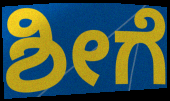
ಶೀಗೆ